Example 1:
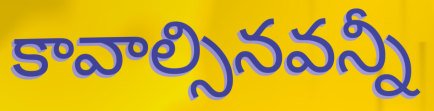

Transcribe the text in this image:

కావాల్సినవన్నీ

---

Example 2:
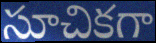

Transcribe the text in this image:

సూచికగా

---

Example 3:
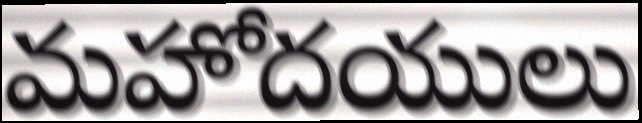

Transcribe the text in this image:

మహోదయులు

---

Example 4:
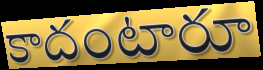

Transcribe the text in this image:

కాదంటారూ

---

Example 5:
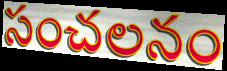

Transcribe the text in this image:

సంచలనం